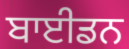
ਬਾਈਡਨ